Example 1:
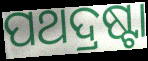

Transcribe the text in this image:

ପଥଦ୍ରଷ୍ଟା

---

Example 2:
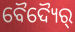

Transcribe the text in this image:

ବୈଦ୍ୟୈର୍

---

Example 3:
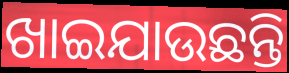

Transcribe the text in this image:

ଖାଇଯାଉଛନ୍ତି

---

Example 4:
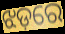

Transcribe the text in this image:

ଝଡ଼ରେ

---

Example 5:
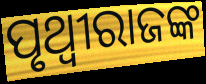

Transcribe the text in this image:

ପୃଥ୍ୱୀରାଜଙ୍କ